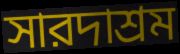
সারদাশ্রম